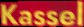
Kassel